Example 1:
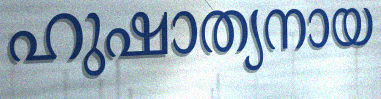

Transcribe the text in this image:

ഹുഷാത്യനായ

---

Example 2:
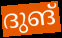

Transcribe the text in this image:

ദുങ്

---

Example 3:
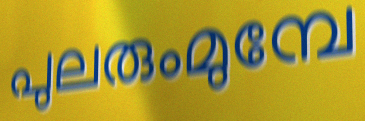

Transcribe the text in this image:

പുലരുംമുമ്പേ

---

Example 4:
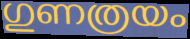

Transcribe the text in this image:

ഗുണത്രയം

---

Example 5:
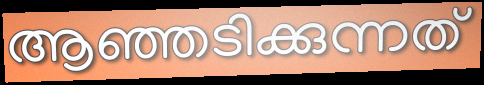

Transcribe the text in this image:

ആഞ്ഞടിക്കുന്നത്